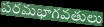
పరమభాగవతులు